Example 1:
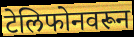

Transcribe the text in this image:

टेलिफोनवरून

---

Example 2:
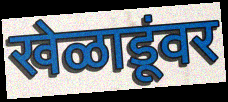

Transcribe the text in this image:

खेळाडूंवर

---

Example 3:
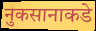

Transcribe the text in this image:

नुकसानाकडे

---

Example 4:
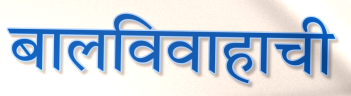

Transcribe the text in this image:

बालविवाहाची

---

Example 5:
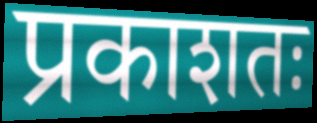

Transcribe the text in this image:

प्रकाशतः